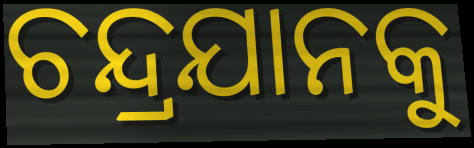
ଚନ୍ଦ୍ରଯାନକୁ